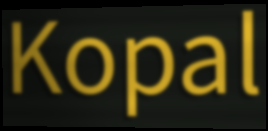
Kopal